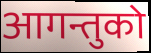
आगन्तुको